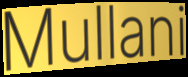
Mullani